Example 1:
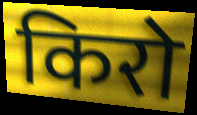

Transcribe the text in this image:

किरो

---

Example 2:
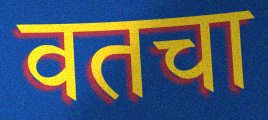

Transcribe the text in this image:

वतचा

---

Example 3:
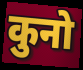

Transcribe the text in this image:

कुनो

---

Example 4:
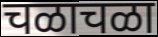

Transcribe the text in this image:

चळाचळा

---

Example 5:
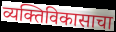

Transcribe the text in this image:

व्यक्तिविकासाचा